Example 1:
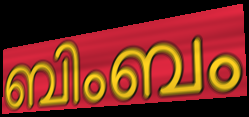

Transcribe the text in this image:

ബിംബം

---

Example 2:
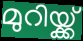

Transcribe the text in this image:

മുറിയ്ക്ക്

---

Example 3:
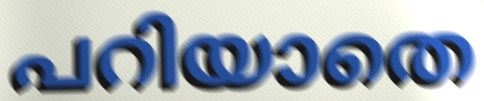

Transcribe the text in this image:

പറിയാതെ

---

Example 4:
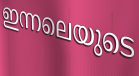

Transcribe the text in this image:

ഇന്നലെയുടെ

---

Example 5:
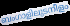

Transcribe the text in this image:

ബംഗാളിലുടനീളം